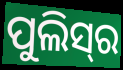
ପୁଲିସ୍‌ର